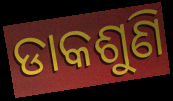
ଡାକଶୁଣି